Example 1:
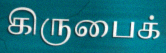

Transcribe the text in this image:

கிருபைக்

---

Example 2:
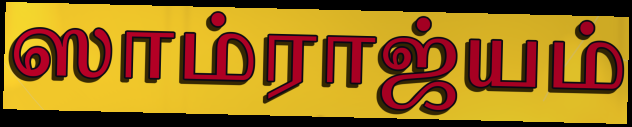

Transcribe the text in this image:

ஸாம்ராஜ்யம்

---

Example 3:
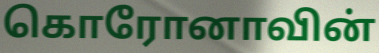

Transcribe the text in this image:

கொரோனாவின்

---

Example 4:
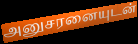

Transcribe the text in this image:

அனுசரனையுடன்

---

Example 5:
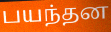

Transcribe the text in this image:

பயந்தன